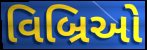
વિબ્રિઓ